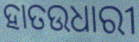
ହାତଉଧାରୀ